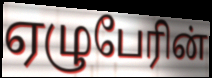
ஏழுபேரின்